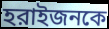
হরাইজনকে